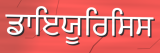
ਡਾਇਯੂਰਿਸਿਸ